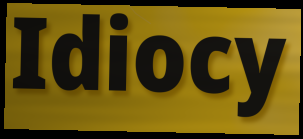
Idiocy